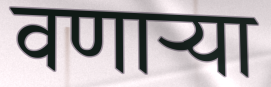
वणाऱ्या